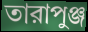
তারাপুঞ্জ